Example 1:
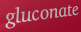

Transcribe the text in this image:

gluconate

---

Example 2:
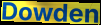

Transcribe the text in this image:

Dowden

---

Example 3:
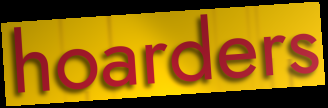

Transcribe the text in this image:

hoarders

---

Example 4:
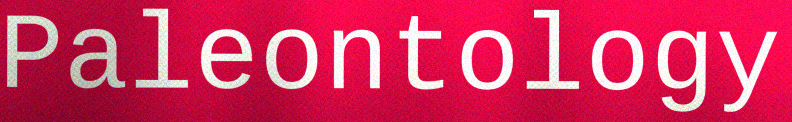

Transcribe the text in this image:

Paleontology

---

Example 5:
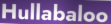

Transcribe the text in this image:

Hullabaloo